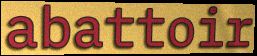
abattoir